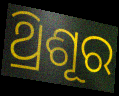
ଥ୍ରିଶୂର